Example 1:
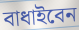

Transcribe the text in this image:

বাধাইবেন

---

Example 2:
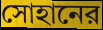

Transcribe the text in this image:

সোহানের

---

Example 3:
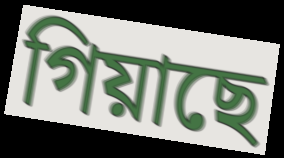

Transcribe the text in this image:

গিয়াছে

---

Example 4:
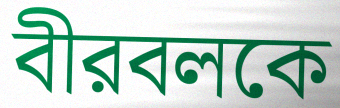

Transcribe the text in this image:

বীরবলকে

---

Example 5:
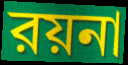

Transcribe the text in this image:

রয়না